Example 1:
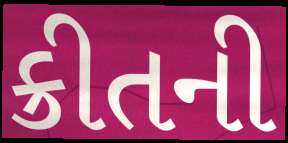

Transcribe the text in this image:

ક્રીતની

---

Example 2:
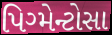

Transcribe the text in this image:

પિગ્મેન્ટોસા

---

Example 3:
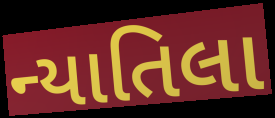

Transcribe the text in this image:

ન્યાતિલા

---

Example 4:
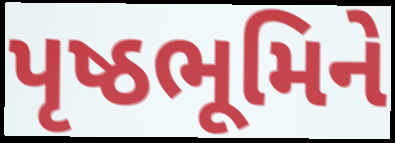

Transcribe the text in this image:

પૃષ્ઠભૂમિને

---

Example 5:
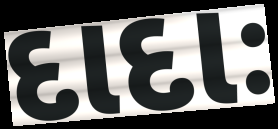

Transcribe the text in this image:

દાદાઃ